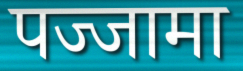
पज्जामा